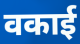
वकाई